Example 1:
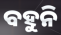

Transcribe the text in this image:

ବହୁନି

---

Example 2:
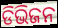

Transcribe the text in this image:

ଡିଭିଜନ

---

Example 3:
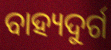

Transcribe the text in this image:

ବାହ୍ୟଦୁର୍ଗ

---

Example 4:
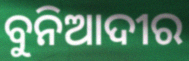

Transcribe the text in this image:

ବୁନିଆଦୀର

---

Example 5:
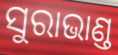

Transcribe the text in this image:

ସୁରାଭାଣ୍ଡ